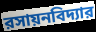
রসায়নবিদ্যার